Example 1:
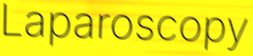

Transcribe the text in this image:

Laparoscopy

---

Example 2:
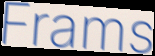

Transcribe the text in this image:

Frams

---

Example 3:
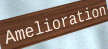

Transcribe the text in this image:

Amelioration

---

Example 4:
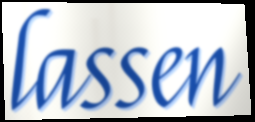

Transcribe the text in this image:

lassen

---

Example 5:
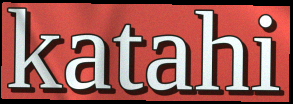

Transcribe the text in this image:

katahi